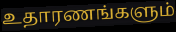
உதாரணங்களும்